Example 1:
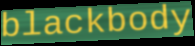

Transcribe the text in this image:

blackbody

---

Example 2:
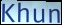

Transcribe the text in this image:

Khun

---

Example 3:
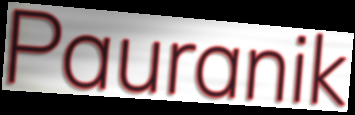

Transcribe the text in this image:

Pauranik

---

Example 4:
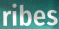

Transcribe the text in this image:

ribes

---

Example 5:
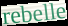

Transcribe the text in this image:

rebelle